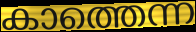
കാത്തെന്ന